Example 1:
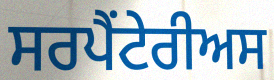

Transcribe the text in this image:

ਸਰਪੈਂਟੇਰੀਅਸ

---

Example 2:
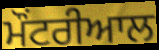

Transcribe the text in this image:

ਮੌਂਟਰੀਆਲ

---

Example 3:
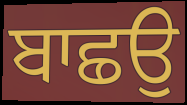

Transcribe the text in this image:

ਬਾਛਉ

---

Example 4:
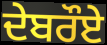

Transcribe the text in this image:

ਦੇਬਰੌਏ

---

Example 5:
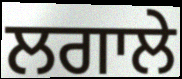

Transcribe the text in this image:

ਲਗਾਲੇ